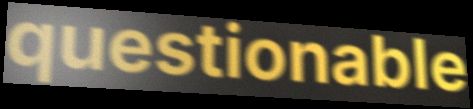
questionable